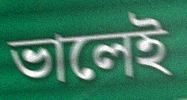
ভালেই